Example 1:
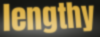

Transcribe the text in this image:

lengthy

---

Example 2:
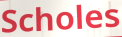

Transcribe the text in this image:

Scholes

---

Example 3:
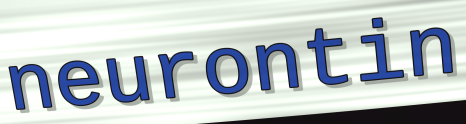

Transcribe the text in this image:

neurontin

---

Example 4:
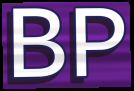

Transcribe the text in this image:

BP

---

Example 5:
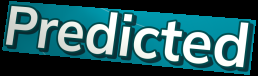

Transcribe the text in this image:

Predicted